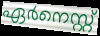
ഏർനെസ്റ്റ്